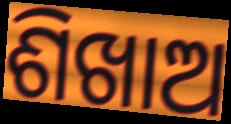
ଶିଖାଅ